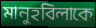
মানুহবিলাকে